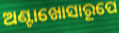
ଅଣ୍ଟାଖୋସାରୂପେ